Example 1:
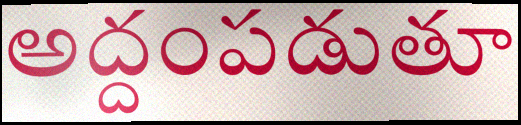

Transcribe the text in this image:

అద్దంపడుతూ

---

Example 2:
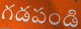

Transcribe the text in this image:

గడపండి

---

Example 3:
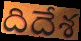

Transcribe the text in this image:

దిదేశ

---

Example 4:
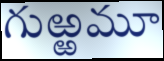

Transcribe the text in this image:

గుఱ్ఱమూ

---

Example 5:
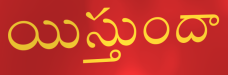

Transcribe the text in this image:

యిస్తుందా